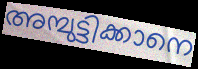
അമ്പുട്ടിക്കാനെ